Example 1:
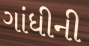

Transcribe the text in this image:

ગાંધીની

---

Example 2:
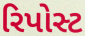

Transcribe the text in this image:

રિપોસ્ટ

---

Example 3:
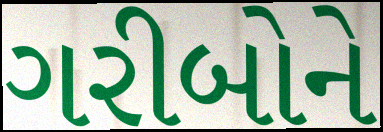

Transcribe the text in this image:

ગરીબોને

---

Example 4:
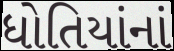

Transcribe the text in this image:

ધોતિયાંનાં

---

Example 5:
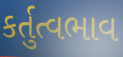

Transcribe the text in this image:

કર્તુત્વભાવ